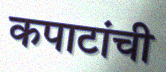
कपाटांची